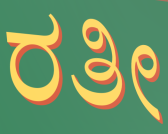
ರತೀ